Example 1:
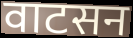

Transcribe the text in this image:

वाटसन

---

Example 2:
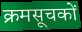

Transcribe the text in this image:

क्रमसूचकों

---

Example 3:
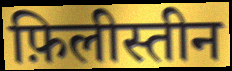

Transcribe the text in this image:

फ़िलीस्तीन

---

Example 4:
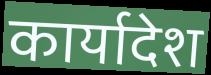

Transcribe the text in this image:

कार्यादेश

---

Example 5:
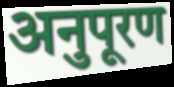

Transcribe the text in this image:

अनुपूरण